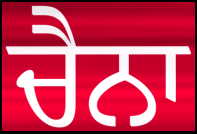
ਚੈਨਾ